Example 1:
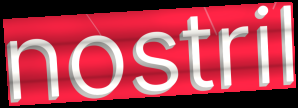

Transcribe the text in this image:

nostril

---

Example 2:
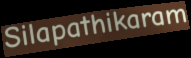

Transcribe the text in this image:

Silapathikaram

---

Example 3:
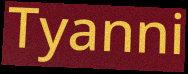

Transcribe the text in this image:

Tyanni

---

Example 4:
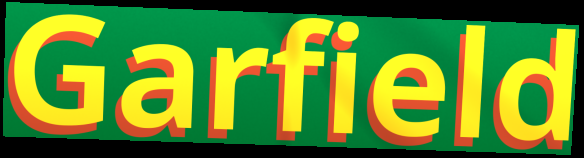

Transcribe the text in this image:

Garfield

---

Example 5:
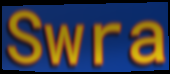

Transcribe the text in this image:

Swra